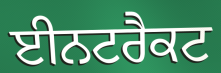
ਈਨਟਰੈਕਟ